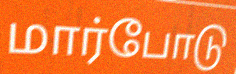
மார்போடு